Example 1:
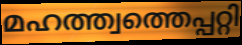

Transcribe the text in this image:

മഹത്ത്വത്തെപ്പറ്റി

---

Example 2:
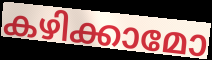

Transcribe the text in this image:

കഴിക്കാമോ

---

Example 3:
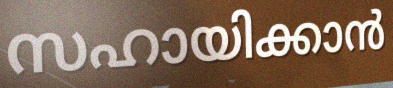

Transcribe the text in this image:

സഹായിക്കാൻ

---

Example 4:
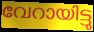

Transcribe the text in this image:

വേറായിട്ടു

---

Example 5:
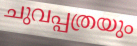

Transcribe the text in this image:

ചുവപ്പത്രയും